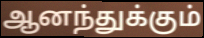
ஆனந்துக்கும்